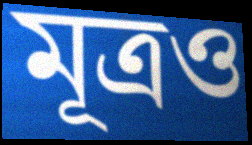
মূত্রও